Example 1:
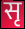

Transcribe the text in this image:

सृ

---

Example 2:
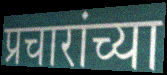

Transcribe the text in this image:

प्रचारांच्या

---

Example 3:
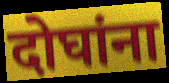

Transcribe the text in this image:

दोघांना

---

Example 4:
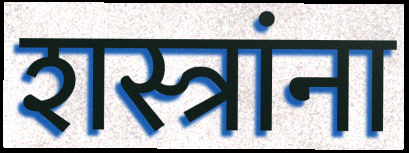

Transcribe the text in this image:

शस्त्रांना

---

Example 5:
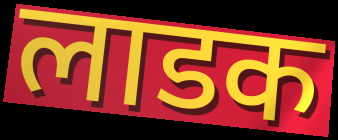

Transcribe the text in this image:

लाडक